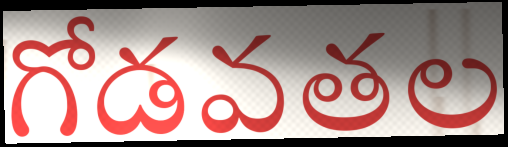
గోడవతల